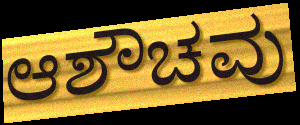
ಆಶೌಚವು